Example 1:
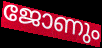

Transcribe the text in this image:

ജോണും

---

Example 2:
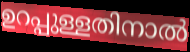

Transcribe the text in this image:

ഉറപ്പുള്ളതിനാൽ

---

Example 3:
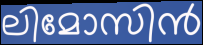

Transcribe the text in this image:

ലിമോസിൻ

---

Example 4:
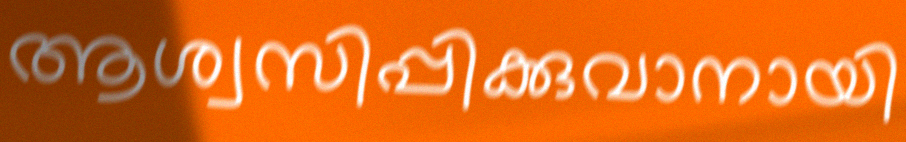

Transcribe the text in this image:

ആശ്വസിപ്പിക്കുവാനായി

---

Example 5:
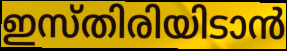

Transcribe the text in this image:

ഇസ്തിരിയിടാൻ